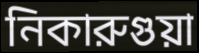
নিকারুগুয়া